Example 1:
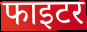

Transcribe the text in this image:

फाइटर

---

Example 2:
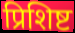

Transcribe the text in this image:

प्रिशिष्ट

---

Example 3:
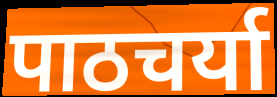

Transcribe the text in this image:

पाठचर्या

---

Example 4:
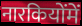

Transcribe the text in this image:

नारकियोंमें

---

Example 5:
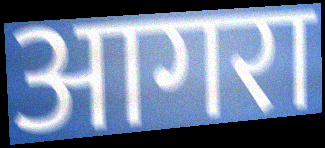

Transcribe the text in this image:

आगरा